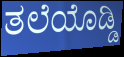
ತಲೆಯೊಡ್ಡಿ